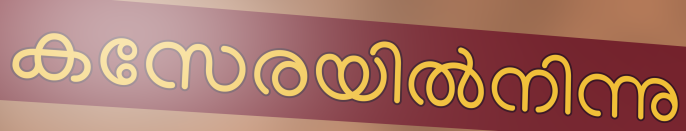
കസേരയിൽനിന്നു